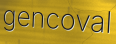
gencoval